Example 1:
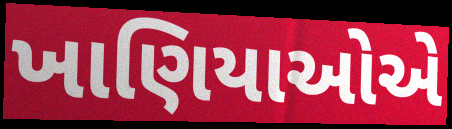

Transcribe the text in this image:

ખાણિયાઓએ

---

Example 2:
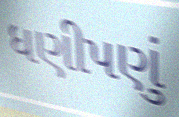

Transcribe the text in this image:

ધણીપણું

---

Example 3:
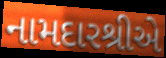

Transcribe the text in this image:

નામદારશ્રીએ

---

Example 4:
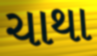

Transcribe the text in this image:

ચાથા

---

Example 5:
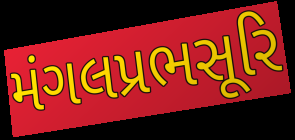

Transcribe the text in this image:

મંગલપ્રભસૂરિ